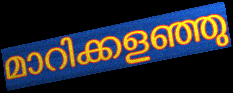
മാറിക്കളഞ്ഞു